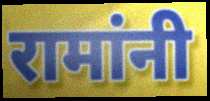
रामांनी